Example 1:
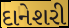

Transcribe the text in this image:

દાનેશરી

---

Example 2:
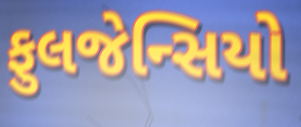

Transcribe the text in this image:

ફુલજેન્સિયો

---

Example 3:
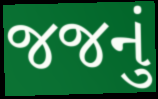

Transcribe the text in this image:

જજનું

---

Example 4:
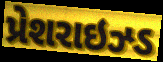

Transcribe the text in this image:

પ્રેશરાઇઝ્ડ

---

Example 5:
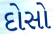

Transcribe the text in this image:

દોસો